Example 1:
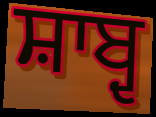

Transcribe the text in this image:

ਸ਼ਾਬ੍ਦ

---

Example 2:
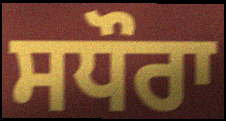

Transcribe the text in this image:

ਸਧੌਰਾ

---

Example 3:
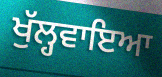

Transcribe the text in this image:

ਖੁੱਲ੍ਹਵਾਇਆ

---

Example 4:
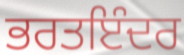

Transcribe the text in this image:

ਭਰਤਇੰਦਰ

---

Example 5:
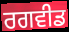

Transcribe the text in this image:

ਰਗਵੀਡ